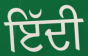
ਇੱਦੀ